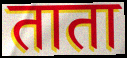
ताता